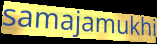
samajamukhi